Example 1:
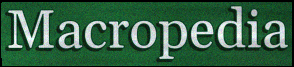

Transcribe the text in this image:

Macropedia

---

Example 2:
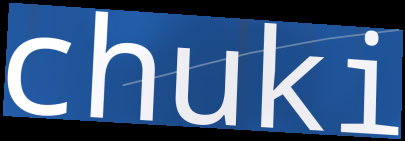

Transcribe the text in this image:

chuki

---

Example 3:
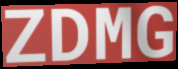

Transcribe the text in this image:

ZDMG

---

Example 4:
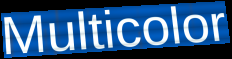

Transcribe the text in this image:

Multicolor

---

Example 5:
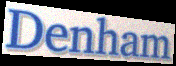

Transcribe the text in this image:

Denham